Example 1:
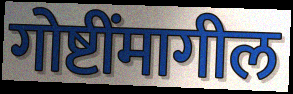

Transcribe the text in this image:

गोष्टींमागील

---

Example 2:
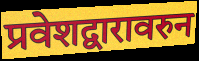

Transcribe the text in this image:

प्रवेशद्वारावरुन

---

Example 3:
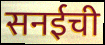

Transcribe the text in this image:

सनईची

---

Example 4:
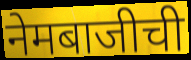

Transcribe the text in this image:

नेमबाजीची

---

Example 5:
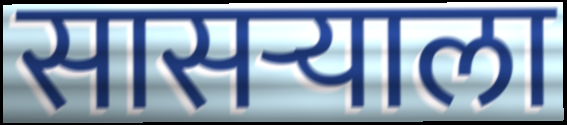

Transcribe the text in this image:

सासऱ्याला